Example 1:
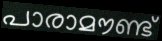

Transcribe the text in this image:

പാരാമൗണ്ട്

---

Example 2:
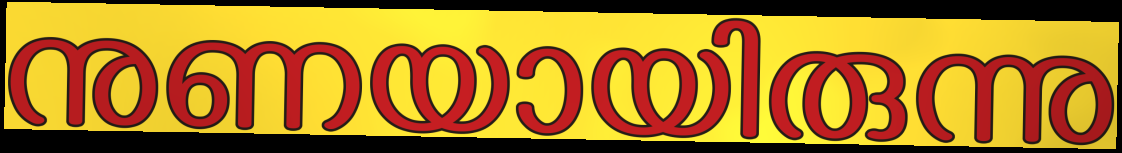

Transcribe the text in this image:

നുണയായിരുന്നു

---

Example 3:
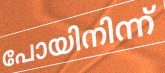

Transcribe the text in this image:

പോയിനിന്ന്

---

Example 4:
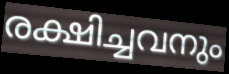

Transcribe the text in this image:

രക്ഷിച്ചവനും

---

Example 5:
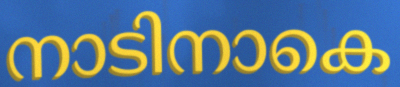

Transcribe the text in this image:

നാടിനാകെ